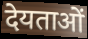
देयताओं